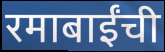
रमाबाईंची